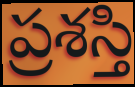
ప్రశస్తి